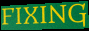
FIXING